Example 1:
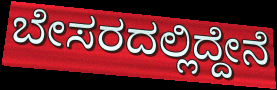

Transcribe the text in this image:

ಬೇಸರದಲ್ಲಿದ್ದೇನೆ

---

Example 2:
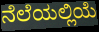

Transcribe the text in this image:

ನೆಲೆಯಲ್ಲಿಯೆ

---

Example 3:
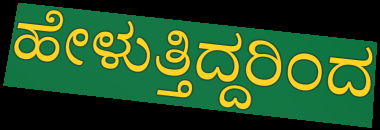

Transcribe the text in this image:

ಹೇಳುತ್ತಿದ್ದರಿಂದ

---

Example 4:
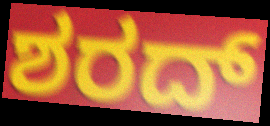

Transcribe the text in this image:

ಶರದ್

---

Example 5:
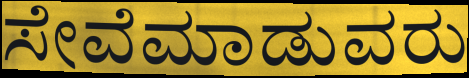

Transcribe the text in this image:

ಸೇವೆಮಾಡುವರು